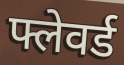
फ्लेवर्ड